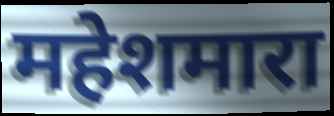
महेशमारा